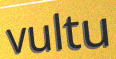
vultu